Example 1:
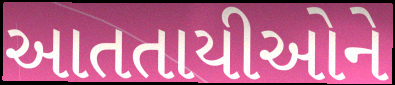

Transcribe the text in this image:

આતતાયીઓને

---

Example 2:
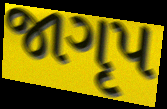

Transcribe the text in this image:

જાગૃપ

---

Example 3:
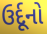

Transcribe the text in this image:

ઉર્દૂનો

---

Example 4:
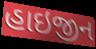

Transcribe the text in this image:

હાઇજીન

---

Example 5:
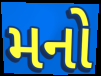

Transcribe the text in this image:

મનો